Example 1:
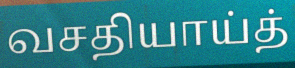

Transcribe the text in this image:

வசதியாய்த்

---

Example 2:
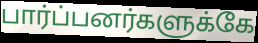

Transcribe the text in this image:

பார்ப்பனர்களுக்கே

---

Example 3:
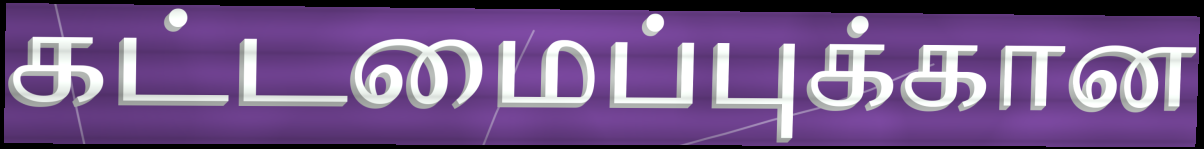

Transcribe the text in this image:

கட்டமைப்புக்கான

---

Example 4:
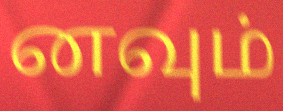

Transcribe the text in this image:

னவும்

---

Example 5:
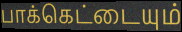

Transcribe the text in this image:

பாக்கெட்டையும்